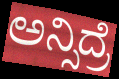
ಅನ್ಸಿದ್ರೆ